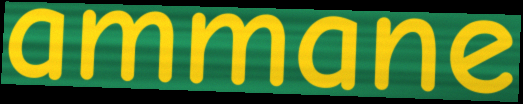
ammane